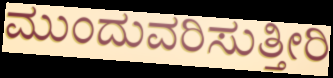
ಮುಂದುವರಿಸುತ್ತೀರಿ